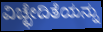
ವಿಚ್ಛೇದಿತೆಯನ್ನು